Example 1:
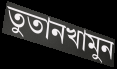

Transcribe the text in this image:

তুতানখামুন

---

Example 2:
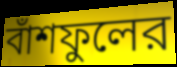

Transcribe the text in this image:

বাঁশফুলের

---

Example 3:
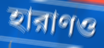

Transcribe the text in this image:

হারাণও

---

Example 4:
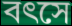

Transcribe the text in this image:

বৎসে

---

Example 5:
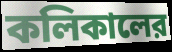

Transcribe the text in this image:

কলিকালের